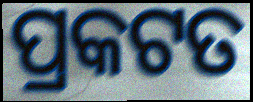
ପ୍ରକଟତ